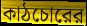
কাঠচোরের